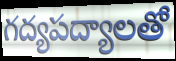
గద్యపద్యాలతో